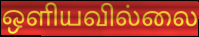
ஒளியவில்லை